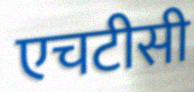
एचटीसी